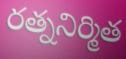
రత్ననిర్మిత